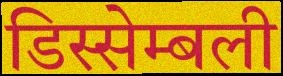
डिस्सेम्बली